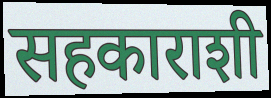
सहकाराशी